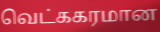
வெட்ககரமான